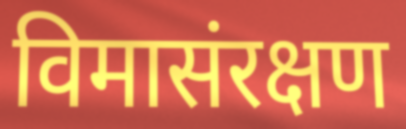
विमासंरक्षण